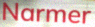
Narmer